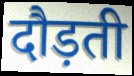
दौड़ती